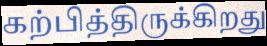
கற்பித்திருக்கிறது